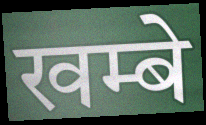
खम्बे